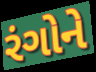
રંગોને